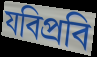
যবিপ্রবি